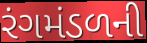
રંગમંડળની